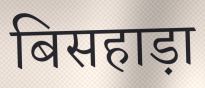
बिसहाड़ा